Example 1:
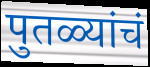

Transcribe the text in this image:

पुतळ्यांचं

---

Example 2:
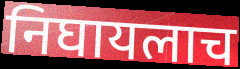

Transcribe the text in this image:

निघायलाच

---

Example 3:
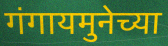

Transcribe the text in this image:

गंगायमुनेच्या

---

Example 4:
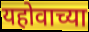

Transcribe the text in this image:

यहोवाच्या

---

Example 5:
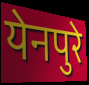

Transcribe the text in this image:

येनपुरे